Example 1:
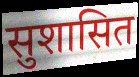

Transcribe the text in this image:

सुशासित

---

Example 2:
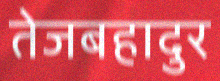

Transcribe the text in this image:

तेजबहादुर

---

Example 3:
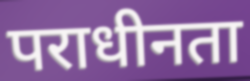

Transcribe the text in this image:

पराधीनता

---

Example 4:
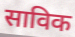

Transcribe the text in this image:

साविक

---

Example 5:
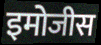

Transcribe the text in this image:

इमोजीस